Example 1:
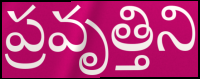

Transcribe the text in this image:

ప్రవృత్తిని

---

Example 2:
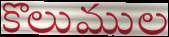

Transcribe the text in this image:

కొలుముల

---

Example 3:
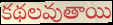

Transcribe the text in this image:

కథలవుతాయి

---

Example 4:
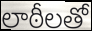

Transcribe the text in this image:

లాఠీలతో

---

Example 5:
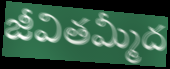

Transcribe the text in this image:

జీవితమ్మీద